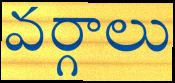
వర్గాలు